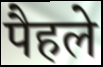
पैहले